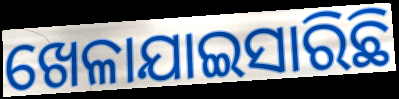
ଖେଳାଯାଇସାରିଛି